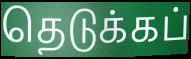
தெடுக்கப்